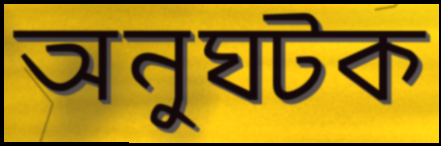
অনুঘটক